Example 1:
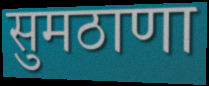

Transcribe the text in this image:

सुमठाणा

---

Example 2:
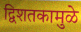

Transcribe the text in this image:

द्विशतकामुळे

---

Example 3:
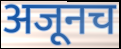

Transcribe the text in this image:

अजूनच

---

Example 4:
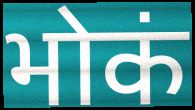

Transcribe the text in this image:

भोकं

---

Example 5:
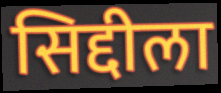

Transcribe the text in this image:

सिद्दीला